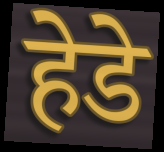
हेडे